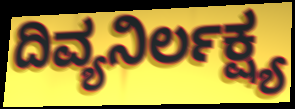
ದಿವ್ಯನಿರ್ಲಕ್ಷ್ಯ